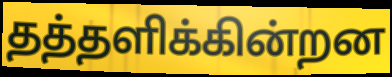
தத்தளிக்கின்றன